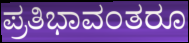
ಪ್ರತಿಭಾವಂತರೂ